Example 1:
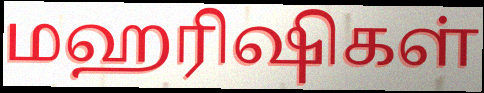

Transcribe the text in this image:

மஹரிஷிகள்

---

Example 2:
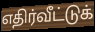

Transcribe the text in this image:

எதிர்வீட்டுக்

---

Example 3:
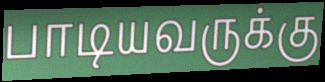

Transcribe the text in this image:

பாடியவருக்கு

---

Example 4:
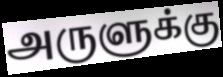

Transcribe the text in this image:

அருளுக்கு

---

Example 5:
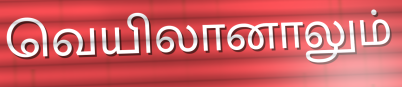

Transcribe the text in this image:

வெயிலானாலும்